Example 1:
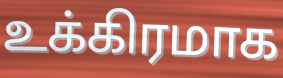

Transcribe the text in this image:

உக்கிரமாக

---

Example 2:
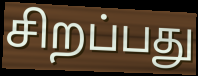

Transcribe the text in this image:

சிறப்பது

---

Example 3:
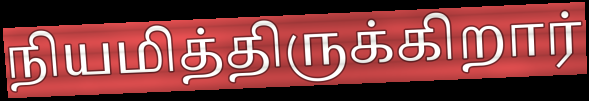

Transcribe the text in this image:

நியமித்திருக்கிறார்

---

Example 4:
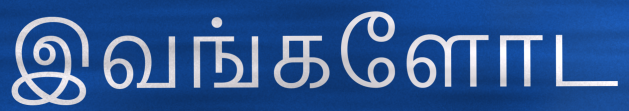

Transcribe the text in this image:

இவங்களோட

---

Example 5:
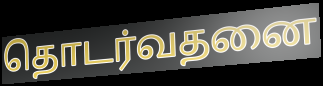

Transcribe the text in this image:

தொடர்வதனை